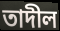
তাদীল